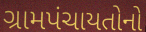
ગ્રામપંચાયતોનો